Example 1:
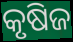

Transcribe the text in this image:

କୃଷିଜ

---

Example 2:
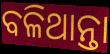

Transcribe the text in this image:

ବଳିଥାନ୍ତା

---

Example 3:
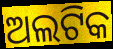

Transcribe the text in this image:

ଅଲଟିକ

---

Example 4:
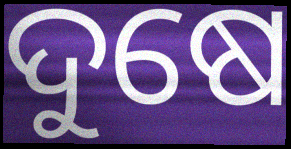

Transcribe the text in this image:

ଦୁଷେ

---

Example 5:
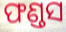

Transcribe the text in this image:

ଫଣ୍ଡସ